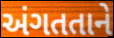
અંગતતાને